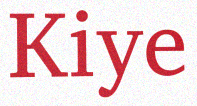
Kiye